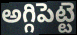
అగ్గిపెట్టె